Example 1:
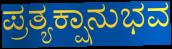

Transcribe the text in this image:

ಪ್ರತ್ಯಕ್ಷಾನುಭವ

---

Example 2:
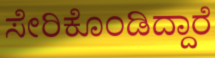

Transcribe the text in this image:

ಸೇರಿಕೊಂಡಿದ್ದಾರೆ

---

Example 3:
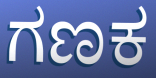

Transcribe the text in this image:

ಗಣಕ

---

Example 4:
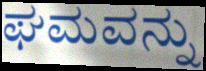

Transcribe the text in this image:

ಘಮವನ್ನು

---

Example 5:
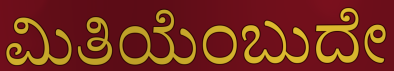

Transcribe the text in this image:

ಮಿತಿಯೆಂಬುದೇ